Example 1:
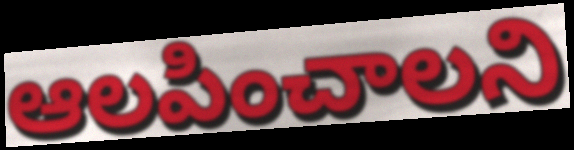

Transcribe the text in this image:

ఆలపించాలని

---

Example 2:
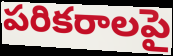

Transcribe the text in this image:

పరికరాలపై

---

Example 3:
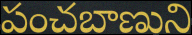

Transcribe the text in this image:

పంచబాణుని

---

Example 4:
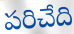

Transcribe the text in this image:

పరిచేది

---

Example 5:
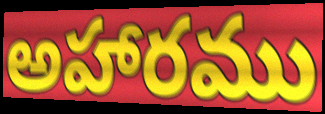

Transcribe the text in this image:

అహారము